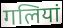
गलियां